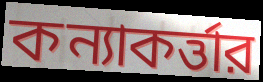
কন্যাকর্ত্তার